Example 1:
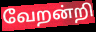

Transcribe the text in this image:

வேறன்றி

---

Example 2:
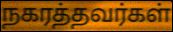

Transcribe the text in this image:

நகரத்தவர்கள்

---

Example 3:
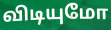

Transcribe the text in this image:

விடியுமோ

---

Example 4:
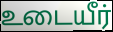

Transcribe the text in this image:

உடையீர்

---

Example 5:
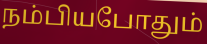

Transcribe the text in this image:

நம்பியபோதும்